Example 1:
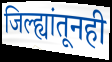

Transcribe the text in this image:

जिल्ह्यांतूनही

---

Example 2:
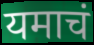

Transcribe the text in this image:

यमाचं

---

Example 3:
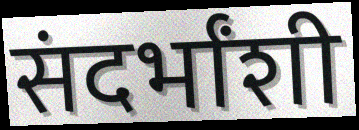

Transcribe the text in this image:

संदर्भांशी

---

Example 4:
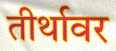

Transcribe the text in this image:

तीर्थावर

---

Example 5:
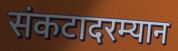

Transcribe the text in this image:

संकटादरम्यान